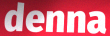
denna